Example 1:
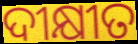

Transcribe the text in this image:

ଦୀକ୍ଷୀତ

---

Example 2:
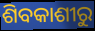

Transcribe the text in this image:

ଶିବକାଶୀରୁ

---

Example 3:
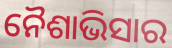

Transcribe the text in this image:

ନୈଶାଭିସାର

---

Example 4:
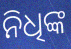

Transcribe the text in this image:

ନିଧିଙ୍କ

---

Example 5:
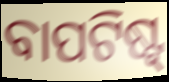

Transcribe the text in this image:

ବାପଟିଷ୍ଟ୍